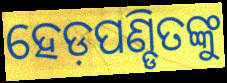
ହେଡ଼ପଣ୍ଡିତଙ୍କୁ